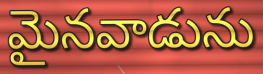
మైనవాడును